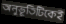
অনুভূতিটিকেই